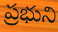
ప్రభుని